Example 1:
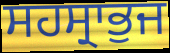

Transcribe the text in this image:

ਸਹਸ੍ਰਾਭੁਜ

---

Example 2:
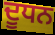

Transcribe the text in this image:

ਦੂਧਨ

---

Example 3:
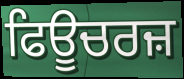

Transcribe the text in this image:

ਫਿਊਚਰਜ਼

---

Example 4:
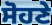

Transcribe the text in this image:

ਸੋਹਣੇ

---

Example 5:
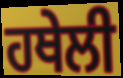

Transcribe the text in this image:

ਹਥੇਲੀ